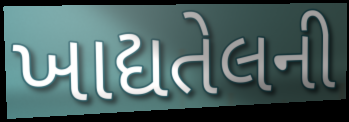
ખાદ્યતેલની